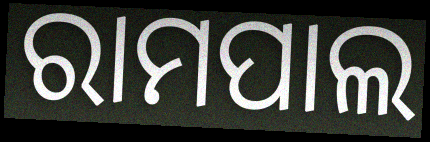
ରାମପାଲ